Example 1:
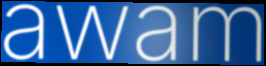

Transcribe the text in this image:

awam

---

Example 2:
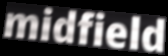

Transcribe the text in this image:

midfield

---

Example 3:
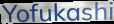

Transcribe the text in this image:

Yofukashi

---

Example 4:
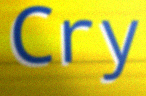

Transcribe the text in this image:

Cry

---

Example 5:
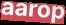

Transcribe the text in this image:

aarop